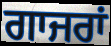
ਗਾਜਰਾਂ